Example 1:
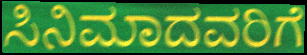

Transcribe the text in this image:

ಸಿನಿಮಾದವರಿಗೆ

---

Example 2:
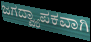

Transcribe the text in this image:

ಜಗದ್ವ್ಯಾಪಕವಾಗಿ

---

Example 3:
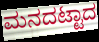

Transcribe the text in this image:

ಮನದಟ್ಟಾದ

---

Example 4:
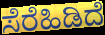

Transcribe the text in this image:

ಸೆರೆಹಿಡಿದೆ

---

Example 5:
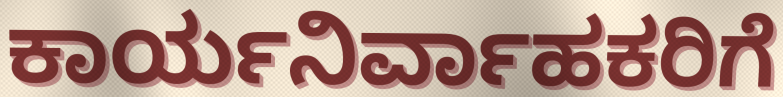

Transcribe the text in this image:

ಕಾರ್ಯನಿರ್ವಾಹಕರಿಗೆ